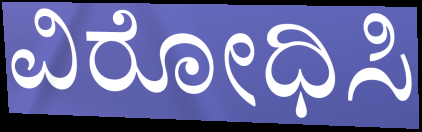
ವಿರೋಧಿಸಿ